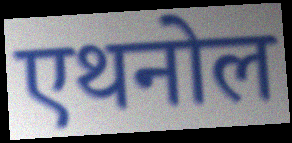
एथनोल